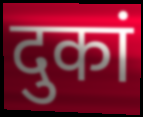
दुकां